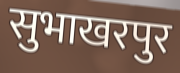
सुभाखरपुर